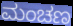
ಮಂಚಣ